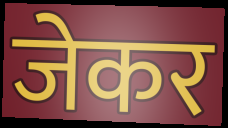
जेकर